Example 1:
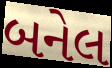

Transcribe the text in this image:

બનેલ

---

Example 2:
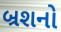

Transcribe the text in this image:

બ્રશનો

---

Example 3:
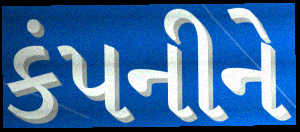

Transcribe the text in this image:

કંપનીને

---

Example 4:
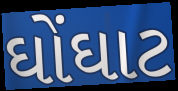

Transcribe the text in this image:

ઘોંઘાટ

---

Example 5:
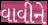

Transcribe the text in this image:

વાવીને